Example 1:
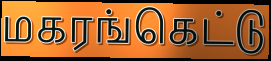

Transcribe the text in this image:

மகரங்கெட்டு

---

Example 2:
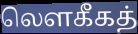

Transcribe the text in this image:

லௌகீகத்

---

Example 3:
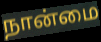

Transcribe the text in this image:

நான்மை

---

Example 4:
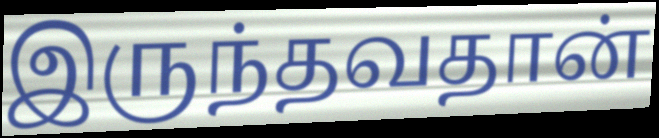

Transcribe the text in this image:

இருந்தவதான்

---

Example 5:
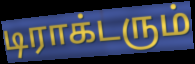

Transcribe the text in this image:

டிராக்டரும்